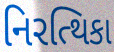
નિરત્થિકા